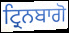
ਟ੍ਰਿਨਬਾਗੋ